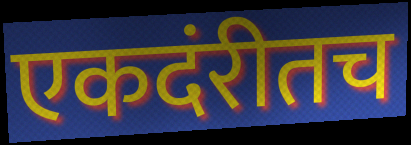
एकदंरीतच